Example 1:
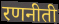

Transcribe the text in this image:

रणनीती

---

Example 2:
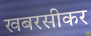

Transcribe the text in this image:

खबरसीकर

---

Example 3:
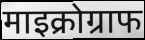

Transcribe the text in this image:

माइक्रोग्राफ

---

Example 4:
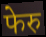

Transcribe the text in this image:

फेरु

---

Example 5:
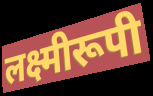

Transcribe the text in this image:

लक्ष्मीरूपी